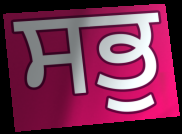
ਸਭੁ